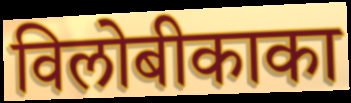
विलोबीकाका